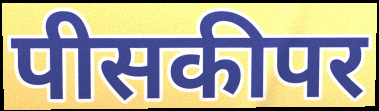
पीसकीपर